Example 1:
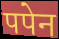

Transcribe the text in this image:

पपेन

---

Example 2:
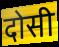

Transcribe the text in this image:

दोसी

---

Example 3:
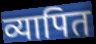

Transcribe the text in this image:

व्यापित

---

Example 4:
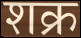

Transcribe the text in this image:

शक्र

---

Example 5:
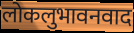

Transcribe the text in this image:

लोकलुभावनवाद